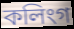
কলিংগ